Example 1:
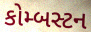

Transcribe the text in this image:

કોમ્બસ્ટન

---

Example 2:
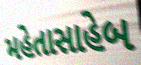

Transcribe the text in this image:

મહેતાસાહેબ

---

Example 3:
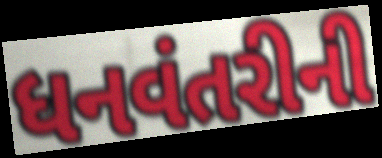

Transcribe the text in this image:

ધનવંતરીની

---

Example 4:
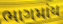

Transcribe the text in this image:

ભાગમાંય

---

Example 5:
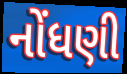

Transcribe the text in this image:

નોંધણી